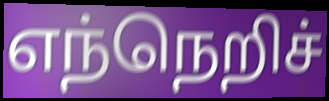
எந்நெறிச்